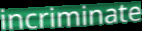
incriminate